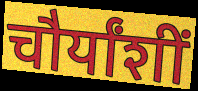
चौर्यांशीं